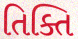
તિક્તિ